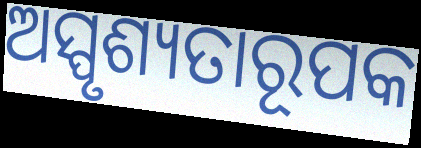
ଅସ୍ପୃଶ୍ୟତାରୂପକ